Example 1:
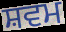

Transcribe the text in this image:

ਸ਼ਵਮ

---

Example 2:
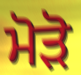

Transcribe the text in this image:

ਮੋੜੋ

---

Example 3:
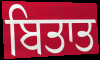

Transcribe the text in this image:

ਬਿਤਾਤ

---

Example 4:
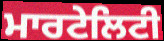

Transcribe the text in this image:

ਮਾਰਟੇਲਿਟੀ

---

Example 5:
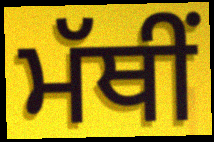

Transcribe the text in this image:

ਮੱਥੀਂ